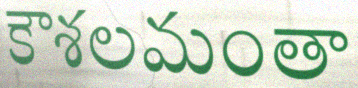
కౌశలమంతా